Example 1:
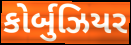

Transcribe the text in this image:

કોર્બુઝિયર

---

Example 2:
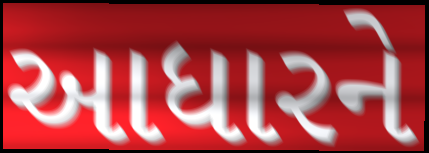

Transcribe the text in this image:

આધારને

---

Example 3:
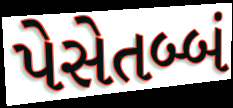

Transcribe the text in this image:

પેસેતબ્બં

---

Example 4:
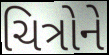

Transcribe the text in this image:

ચિત્રોને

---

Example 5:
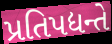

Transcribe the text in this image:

પ્રતિપદ્યન્તે